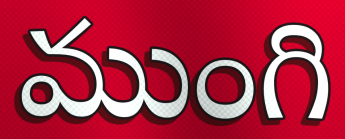
ముంగి